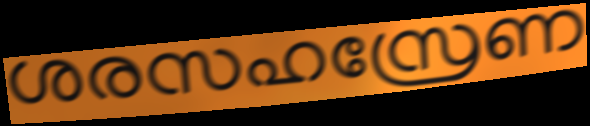
ശരസഹസ്രേണ